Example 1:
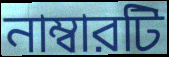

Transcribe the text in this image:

নাম্বারটি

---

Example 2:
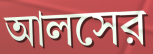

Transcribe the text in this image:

আলসের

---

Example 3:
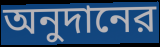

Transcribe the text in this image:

অনুদানের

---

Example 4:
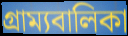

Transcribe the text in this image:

গ্রাম্যবালিকা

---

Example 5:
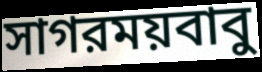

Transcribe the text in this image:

সাগরময়বাবু